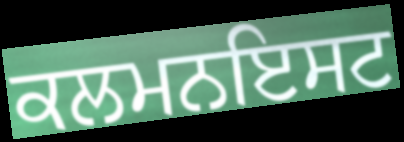
ਕਲਮਨਇਸਟ